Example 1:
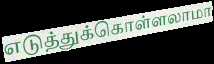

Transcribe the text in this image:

எடுத்துக்கொள்ளலாமா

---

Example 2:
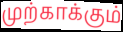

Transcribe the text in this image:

முற்காக்கும்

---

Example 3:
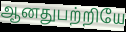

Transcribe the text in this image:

ஆனதுபற்றியே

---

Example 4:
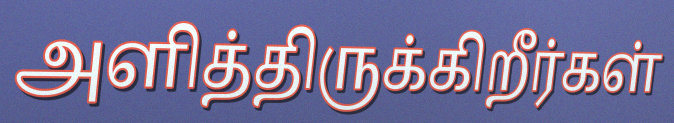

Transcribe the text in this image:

அளித்திருக்கிறீர்கள்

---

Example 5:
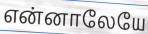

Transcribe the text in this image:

என்னாலேயே